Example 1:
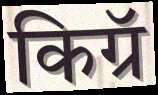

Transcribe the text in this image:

किग्रॅ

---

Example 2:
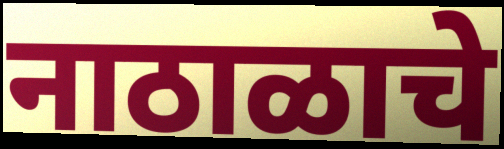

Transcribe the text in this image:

नाठाळाचे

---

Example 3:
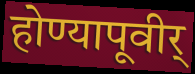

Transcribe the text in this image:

होण्यापूवीर्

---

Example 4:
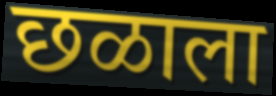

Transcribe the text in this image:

छळाला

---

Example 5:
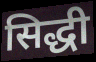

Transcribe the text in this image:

सिद्धी